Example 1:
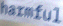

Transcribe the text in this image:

harmful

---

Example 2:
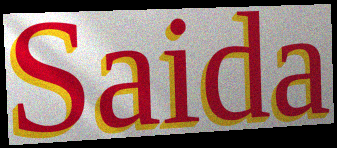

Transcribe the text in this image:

Saida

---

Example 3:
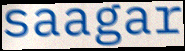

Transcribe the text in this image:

saagar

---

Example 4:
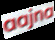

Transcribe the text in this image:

aajna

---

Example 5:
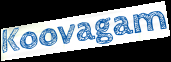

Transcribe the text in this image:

Koovagam